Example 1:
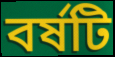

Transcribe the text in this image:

বর্ষটি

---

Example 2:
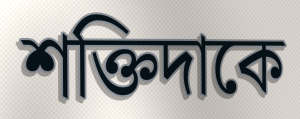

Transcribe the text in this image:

শক্তিদাকে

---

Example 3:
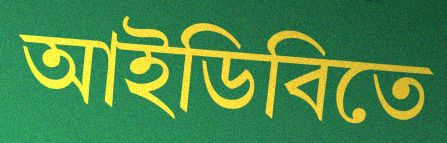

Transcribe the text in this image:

আইডিবিতে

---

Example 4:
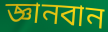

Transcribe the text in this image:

জ্ঞানবান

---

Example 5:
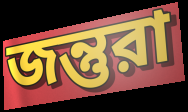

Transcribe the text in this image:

জন্তুরা